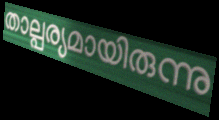
താല്പര്യമായിരുന്നു